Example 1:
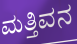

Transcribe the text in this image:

ಮತ್ತಿವನ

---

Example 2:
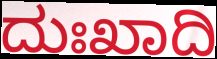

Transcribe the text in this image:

ದುಃಖಾದಿ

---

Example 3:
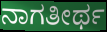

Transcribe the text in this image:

ನಾಗತೀರ್ಥ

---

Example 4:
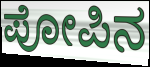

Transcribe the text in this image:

ಪೋಪಿನ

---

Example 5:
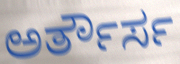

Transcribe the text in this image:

ಅರ್ತೌರ್ಸ